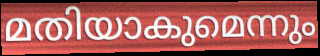
മതിയാകുമെന്നും